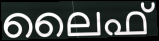
ലൈഫ്